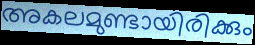
അകലമുണ്ടായിരിക്കും